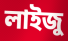
লাইজু